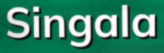
Singala